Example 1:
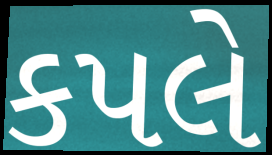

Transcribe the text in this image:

કપલે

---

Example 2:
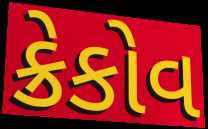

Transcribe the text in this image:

ક્રેકોવ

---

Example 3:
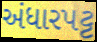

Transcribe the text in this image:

અંધારપટ્ટ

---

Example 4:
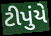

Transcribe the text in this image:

ટીપુંયે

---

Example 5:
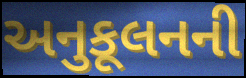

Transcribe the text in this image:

અનુકૂલનની